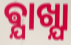
ଵ୍ଯାଖ୍ଯା